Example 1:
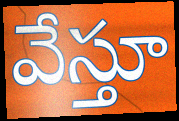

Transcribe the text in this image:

వేస్తూ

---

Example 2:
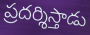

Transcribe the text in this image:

ప్రదర్శిస్తాడు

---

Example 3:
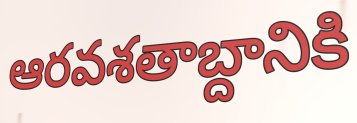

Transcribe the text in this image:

ఆరవశతాబ్దానికి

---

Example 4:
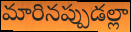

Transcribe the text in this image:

మారినప్పుడల్లా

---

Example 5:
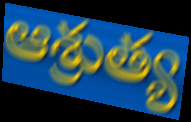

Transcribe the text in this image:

ఆశ్రుత్య